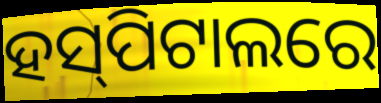
ହସ୍‌ପିଟାଲରେ